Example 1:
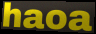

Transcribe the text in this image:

haoa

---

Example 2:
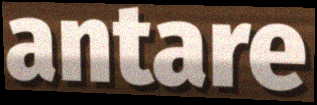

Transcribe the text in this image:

antare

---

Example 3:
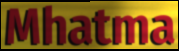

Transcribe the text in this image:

Mhatma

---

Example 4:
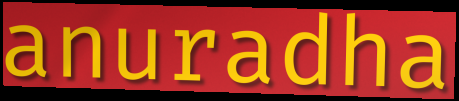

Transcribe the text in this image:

anuradha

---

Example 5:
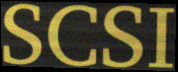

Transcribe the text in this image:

SCSI